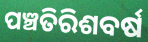
ପଞ୍ଚତିରିଶବର୍ଷ